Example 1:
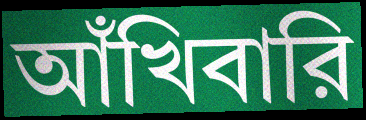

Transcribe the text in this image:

আঁখিবারি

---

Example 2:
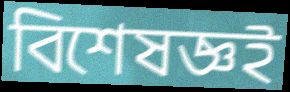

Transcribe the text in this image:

বিশেষজ্ঞই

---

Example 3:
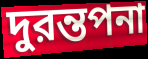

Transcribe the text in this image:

দুরন্তপনা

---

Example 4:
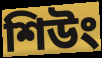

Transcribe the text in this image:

শিউং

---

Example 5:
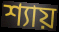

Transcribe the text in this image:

শ্যায়